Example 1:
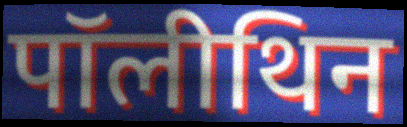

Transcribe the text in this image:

पॉलीथिन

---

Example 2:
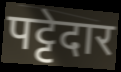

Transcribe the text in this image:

पट्टेदार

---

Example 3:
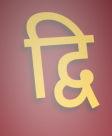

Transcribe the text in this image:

द्वि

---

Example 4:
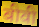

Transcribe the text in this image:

बीवी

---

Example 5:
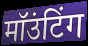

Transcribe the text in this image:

मॉउंटिंग